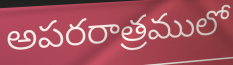
అపరరాత్రములో